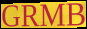
GRMB